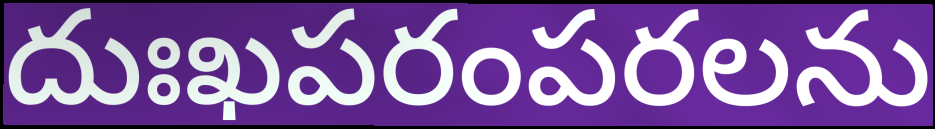
దుఃఖపరంపరలను